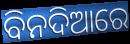
ବିନଦିଆରେ